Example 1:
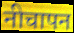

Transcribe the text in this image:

नीचापन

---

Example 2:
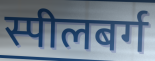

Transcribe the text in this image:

स्पीलबर्ग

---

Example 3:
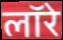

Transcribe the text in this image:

लॉरे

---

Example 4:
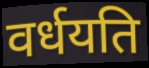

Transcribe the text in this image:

वर्धयति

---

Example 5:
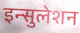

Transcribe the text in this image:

इन्सुलेशन